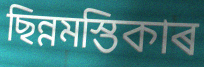
ছিন্নমস্তিকাৰ